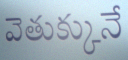
వెతుక్కునే